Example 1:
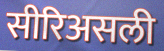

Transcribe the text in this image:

सीरिअसली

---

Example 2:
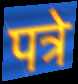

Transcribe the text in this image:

पत्रे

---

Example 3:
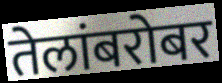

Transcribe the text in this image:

तेलांबरोबर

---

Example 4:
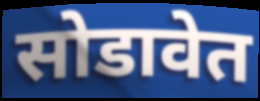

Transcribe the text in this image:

सोडावेत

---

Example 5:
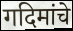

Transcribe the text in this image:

गदिमांचे